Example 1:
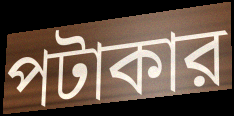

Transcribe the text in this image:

পটাকার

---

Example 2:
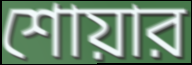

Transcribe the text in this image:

শোয়ার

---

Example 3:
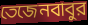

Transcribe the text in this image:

তেজেনবাবুর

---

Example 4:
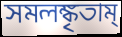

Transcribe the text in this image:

সমলঙ্কৃতাম্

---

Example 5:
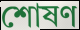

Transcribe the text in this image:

শোষণ